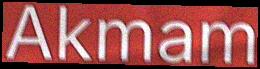
Akmam